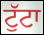
ਟੁੱਟਾ